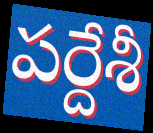
పర్దేశీ